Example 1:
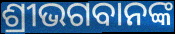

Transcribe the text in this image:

ଶ୍ରୀଭଗବାନଙ୍କ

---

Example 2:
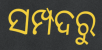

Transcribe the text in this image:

ସମ୍ପଦରୁ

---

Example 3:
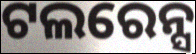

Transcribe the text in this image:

ଟଲରେନ୍ସ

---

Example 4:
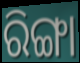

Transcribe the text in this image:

ରିଙ୍ଗା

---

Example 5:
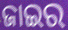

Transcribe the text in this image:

ଜାଇର